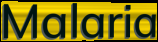
Malaria